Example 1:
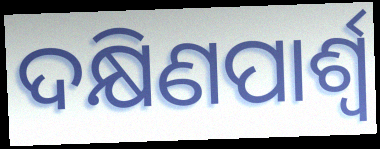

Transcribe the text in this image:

ଦକ୍ଷିଣପାର୍ଶ୍ବ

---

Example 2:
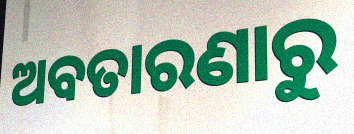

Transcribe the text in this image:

ଅବତାରଣାରୁ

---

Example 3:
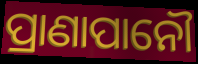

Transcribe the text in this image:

ପ୍ରାଣାପାନୌ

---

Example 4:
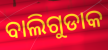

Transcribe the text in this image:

ବାଲିଗୁଡାକ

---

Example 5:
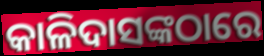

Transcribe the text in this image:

କାଳିଦାସଙ୍କଠାରେ